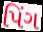
પિંગ